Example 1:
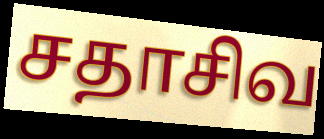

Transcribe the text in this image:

சதாசிவ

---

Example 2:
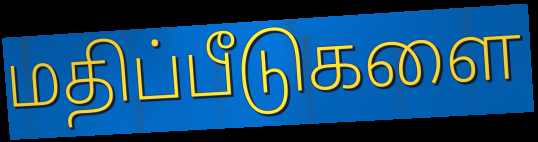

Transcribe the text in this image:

மதிப்பீடுகளை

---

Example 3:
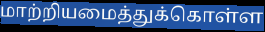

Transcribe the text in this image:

மாற்றியமைத்துக்கொள்ள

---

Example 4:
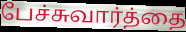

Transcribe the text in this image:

பேச்சுவார்த்தை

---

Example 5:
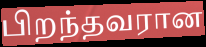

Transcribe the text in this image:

பிறந்தவரான